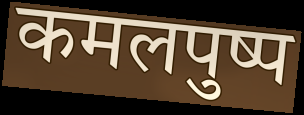
कमलपुष्प